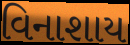
વિનાશાય